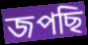
জপছি